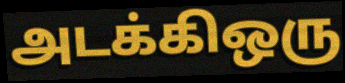
அடக்கிஒரு